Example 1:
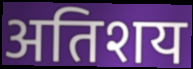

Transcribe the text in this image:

अतिशय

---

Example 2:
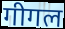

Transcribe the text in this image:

गीगल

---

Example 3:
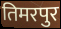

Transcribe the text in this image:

तिमरपुर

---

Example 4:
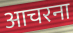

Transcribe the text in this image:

आचरना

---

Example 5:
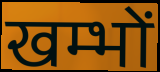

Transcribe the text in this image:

खम्भों